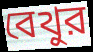
বেথুর